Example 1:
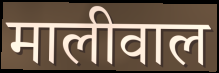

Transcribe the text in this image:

मालीवाल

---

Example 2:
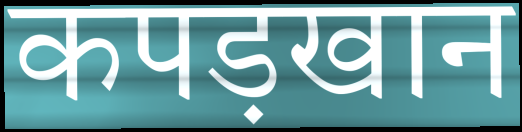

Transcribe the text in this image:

कपड़खान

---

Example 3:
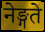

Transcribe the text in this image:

नेङ्गते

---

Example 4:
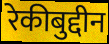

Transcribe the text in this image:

रेकीबुद्दीन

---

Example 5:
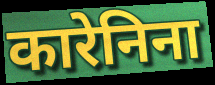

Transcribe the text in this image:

कारेनिना